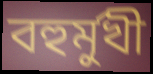
বহুর্মুখী